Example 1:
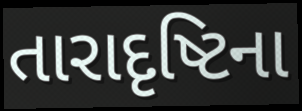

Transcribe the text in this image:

તારાદૃષ્ટિના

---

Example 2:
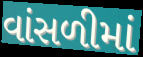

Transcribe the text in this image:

વાંસળીમાં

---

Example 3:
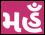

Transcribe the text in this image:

મહઁ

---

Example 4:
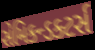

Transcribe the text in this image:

સેમિકન્ડક્ટર્સ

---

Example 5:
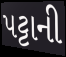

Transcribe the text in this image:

પટ્ટાની